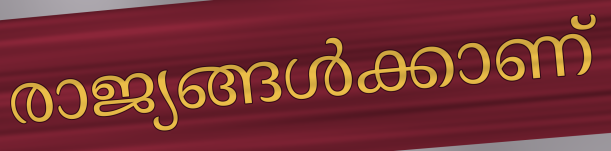
രാജ്യങ്ങൾക്കാണ്